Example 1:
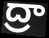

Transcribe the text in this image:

ద్రా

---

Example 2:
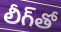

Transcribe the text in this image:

లీగ్‌తో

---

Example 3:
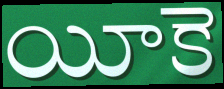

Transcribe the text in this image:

యీకె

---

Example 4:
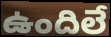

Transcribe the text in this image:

ఉందిలే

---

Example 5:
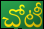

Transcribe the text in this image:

చోటీ